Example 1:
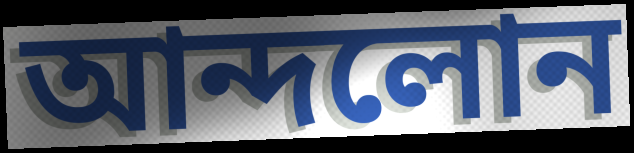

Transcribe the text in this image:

আন্দলোন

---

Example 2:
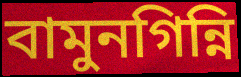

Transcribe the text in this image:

বামুনগিন্নি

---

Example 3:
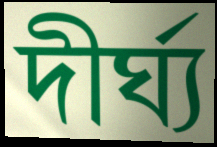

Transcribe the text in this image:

দীর্ঘ্য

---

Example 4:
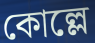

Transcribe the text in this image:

কোল্লে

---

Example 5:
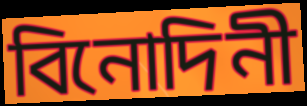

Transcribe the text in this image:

বিনোদিনী